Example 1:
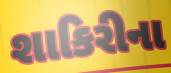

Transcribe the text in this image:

શાકિરીના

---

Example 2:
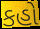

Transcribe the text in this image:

કહો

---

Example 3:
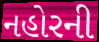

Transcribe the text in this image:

નહોરની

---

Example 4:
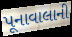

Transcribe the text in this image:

પૂનાવાલાની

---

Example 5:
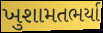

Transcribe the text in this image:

ખુશામતભર્યા